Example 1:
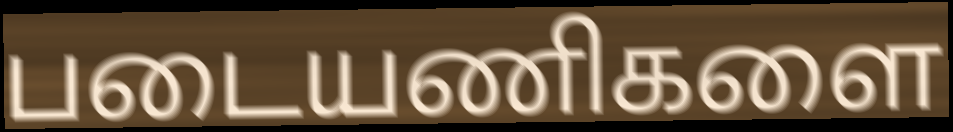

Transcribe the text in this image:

படையணிகளை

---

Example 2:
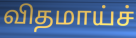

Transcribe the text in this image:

விதமாய்ச்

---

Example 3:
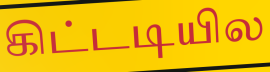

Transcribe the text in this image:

கிட்டடியில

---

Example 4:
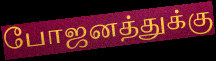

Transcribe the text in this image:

போஜனத்துக்கு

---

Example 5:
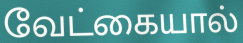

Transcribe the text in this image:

வேட்கையால்